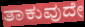
ತಾಕುವುದೇ